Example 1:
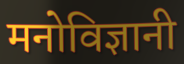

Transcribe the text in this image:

मनोविज्ञानी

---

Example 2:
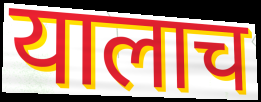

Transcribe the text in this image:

यालाच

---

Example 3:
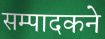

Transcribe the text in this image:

सम्पादकने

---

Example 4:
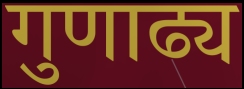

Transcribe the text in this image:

गुणाढ्य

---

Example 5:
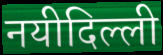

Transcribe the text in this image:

नयीदिल्ली